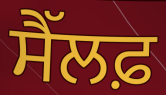
ਸੈੱਲਫ਼